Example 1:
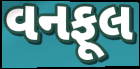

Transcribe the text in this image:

વનફૂલ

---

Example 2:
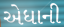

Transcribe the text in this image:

એધાની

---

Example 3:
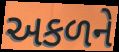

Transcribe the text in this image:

અકળને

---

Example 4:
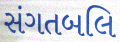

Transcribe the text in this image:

સંગતબલિ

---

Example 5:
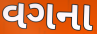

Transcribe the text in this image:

વગના